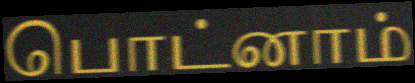
பொட்னாம்